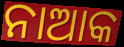
ନାଆକ